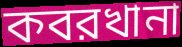
কবরখানা